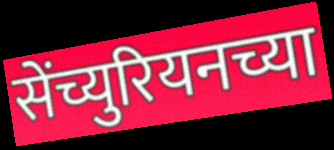
सेंच्युरियनच्या